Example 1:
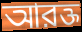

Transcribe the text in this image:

আরক্ত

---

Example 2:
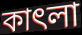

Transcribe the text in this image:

কাৎলা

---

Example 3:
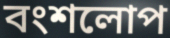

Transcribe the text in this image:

বংশলোপ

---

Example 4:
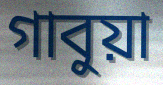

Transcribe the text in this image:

গাবুয়া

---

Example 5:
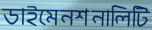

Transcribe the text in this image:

ডাইমেনশনালিটি